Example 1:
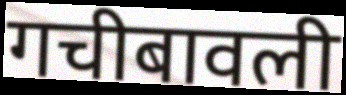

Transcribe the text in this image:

गचीबावली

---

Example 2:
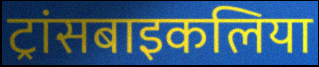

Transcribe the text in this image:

ट्रांसबाइकलिया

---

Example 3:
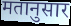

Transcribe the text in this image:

मतानुसार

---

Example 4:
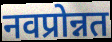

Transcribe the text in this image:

नवप्रोन्नत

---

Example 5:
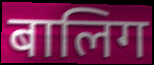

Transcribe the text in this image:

बालिग